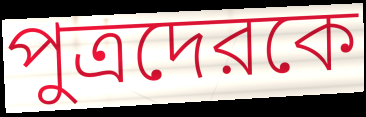
পুত্রদেরকে